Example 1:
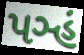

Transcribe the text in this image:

પઞ્હં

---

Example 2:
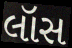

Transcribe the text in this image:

લૉસ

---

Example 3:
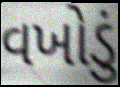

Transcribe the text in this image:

વખોડું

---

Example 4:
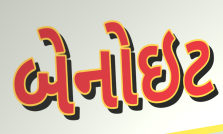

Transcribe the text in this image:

બેનોઇટ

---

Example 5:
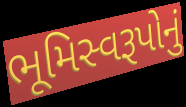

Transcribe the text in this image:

ભૂમિસ્વરૂપોનું